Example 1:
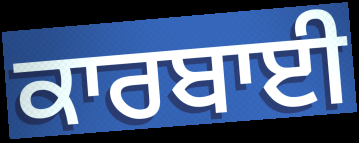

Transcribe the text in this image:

ਕਾਰਬਾਈ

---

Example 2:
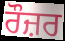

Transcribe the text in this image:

ਰੌਜ਼ਰ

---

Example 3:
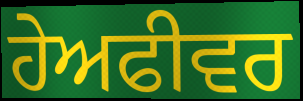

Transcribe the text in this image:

ਹੇਅਫੀਵਰ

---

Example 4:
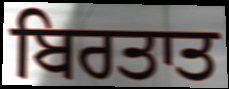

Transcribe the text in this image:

ਬਿਰਤਾਤ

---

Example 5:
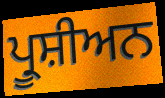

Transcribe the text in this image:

ਪ੍ਰੂਸ਼ੀਅਨ